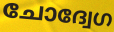
ചോദ്വേഗ